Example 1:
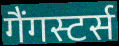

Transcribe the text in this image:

गैंगस्टर्स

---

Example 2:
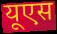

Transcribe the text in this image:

यूएस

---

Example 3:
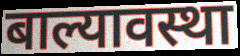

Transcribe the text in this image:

बाल्यावस्था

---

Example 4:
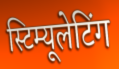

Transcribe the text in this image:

स्टिम्यूलेटिंग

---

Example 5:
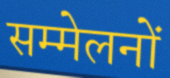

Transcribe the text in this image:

सम्मेलनों